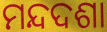
ମନ୍ଦଦଶା